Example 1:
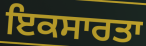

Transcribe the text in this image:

ਇਕਸਾਰਤਾ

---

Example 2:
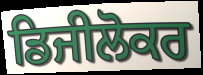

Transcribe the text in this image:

ਡਿਜੀਲੋਕਰ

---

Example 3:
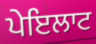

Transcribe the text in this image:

ਪੇਇਲਾਟ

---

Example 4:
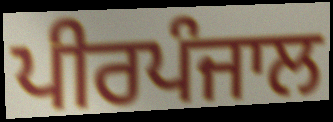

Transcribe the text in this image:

ਪੀਰਪੰਜਾਲ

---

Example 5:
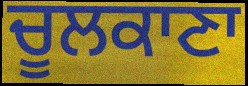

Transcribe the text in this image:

ਚੂਲਕਾਣਾ